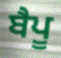
ਬੈਪੂ